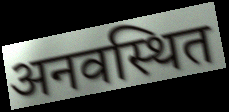
अनवस्थित